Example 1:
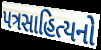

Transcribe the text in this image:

પત્રસાહિત્યનો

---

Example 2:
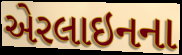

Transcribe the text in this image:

એરલાઇનના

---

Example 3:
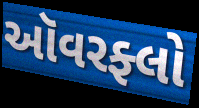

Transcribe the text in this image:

ઑવરફ્લો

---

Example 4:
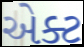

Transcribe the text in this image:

એક્ટ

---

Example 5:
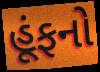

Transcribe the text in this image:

હૂંફનો